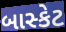
બાસ્કેટ